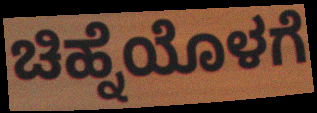
ಚಿಹ್ನೆಯೊಳಗೆ